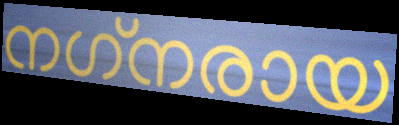
നഗ്‌നരായ